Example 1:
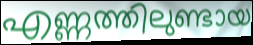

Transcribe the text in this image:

എണ്ണത്തിലുണ്ടായ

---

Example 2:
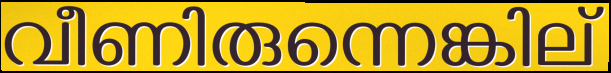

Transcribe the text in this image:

വീണിരുന്നെങ്കില്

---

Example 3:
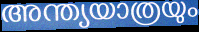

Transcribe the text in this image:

അന്ത്യയാത്രയും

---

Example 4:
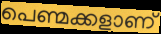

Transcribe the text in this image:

പെണ്മക്കളാണ്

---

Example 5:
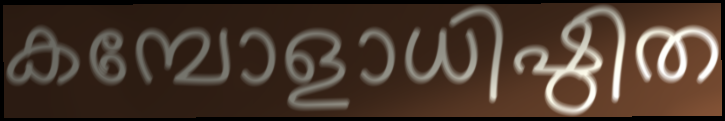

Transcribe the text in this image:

കമ്പോളാധിഷ്ഠിത